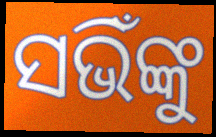
ସଭିଁଙ୍କୁ